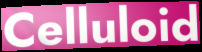
Celluloid